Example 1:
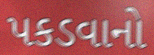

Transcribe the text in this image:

પકડવાનો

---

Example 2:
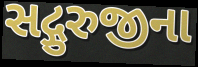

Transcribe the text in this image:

સદ્ગુરુજીના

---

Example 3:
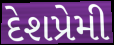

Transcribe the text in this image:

દેશપ્રેમી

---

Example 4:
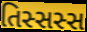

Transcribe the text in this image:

તિસ્સસ્સ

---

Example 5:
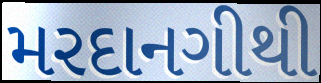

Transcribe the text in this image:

મરદાનગીથી